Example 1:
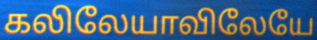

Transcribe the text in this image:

கலிலேயாவிலேயே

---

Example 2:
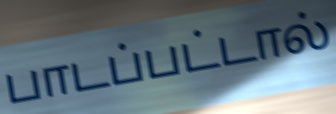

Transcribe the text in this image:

பாடப்பட்டால்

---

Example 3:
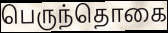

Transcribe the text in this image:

பெருந்தொகை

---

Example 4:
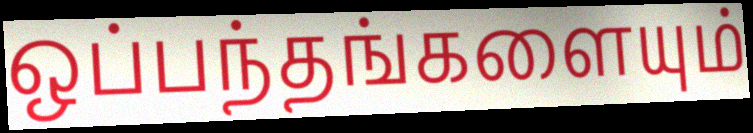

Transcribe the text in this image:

ஒப்பந்தங்களையும்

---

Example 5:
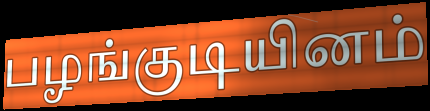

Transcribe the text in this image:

பழங்குடியினம்